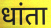
धांता